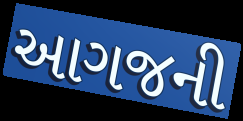
આગજની